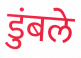
डुंबले